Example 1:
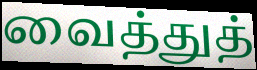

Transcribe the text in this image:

வைத்துத்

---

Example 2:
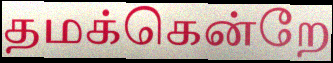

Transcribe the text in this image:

தமக்கென்றே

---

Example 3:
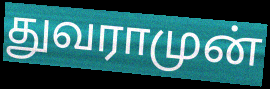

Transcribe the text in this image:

துவராமுன்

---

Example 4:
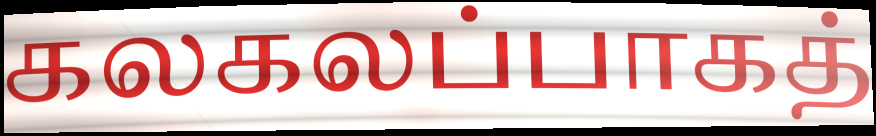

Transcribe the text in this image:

கலகலப்பாகத்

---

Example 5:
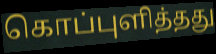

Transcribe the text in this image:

கொப்புளித்தது